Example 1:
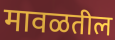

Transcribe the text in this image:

मावळतील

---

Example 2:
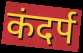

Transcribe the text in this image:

कंदर्प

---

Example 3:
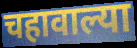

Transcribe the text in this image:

चहावाल्या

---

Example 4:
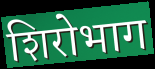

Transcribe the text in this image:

शिरोभाग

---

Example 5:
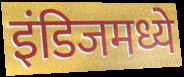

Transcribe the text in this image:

इंडिजमध्ये